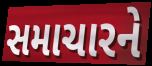
સમાચારને